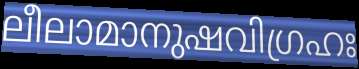
ലീലാമാനുഷവിഗ്രഹഃ